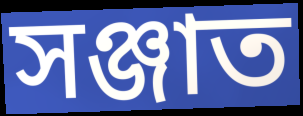
সঞ্জাত